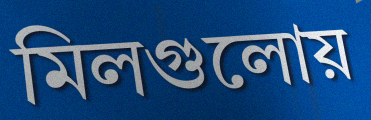
মিলগুলোয়